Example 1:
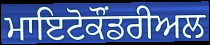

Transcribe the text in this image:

ਮਾਇਟੋਕੌਂਡਰੀਅਲ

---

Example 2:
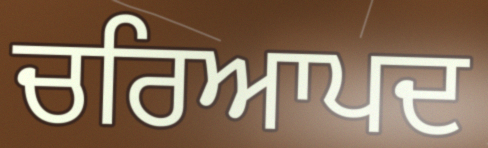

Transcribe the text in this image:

ਚਰਿਆਪਦ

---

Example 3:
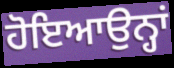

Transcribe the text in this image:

ਹੋਇਆਉਨ੍ਹਾਂ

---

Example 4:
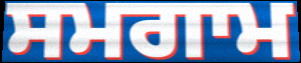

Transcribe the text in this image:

ਸਮਗਾਮ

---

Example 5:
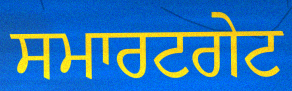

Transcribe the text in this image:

ਸਮਾਰਟਗੇਟ